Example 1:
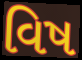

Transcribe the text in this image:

વિષ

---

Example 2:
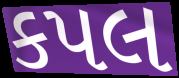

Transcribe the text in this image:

કપલ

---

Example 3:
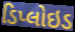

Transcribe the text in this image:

ડિપ્લોઇડ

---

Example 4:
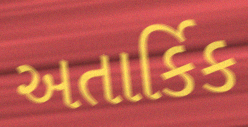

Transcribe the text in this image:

અતાર્કિક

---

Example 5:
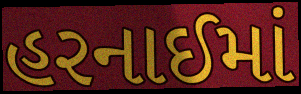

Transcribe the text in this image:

હરનાઈમાં